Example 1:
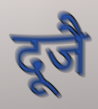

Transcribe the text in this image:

दूजै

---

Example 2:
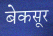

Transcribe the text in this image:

बेकसूर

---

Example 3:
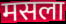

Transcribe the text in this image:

मसला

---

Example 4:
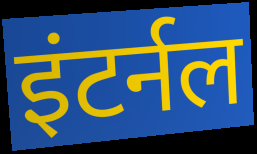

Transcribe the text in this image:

इंटर्नल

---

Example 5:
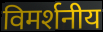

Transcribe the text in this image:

विमर्शनीय